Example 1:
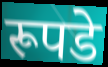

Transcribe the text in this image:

रूपडे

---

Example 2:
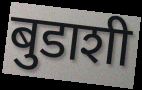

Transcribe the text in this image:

बुडाशी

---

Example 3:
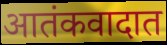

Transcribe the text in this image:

आतंकवादात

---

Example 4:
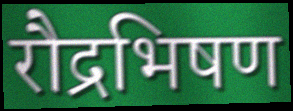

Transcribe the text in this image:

रौद्रभिषण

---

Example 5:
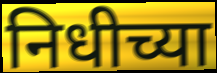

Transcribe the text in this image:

निधीच्या